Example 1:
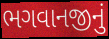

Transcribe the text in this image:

ભગવાનજીનું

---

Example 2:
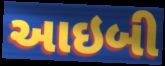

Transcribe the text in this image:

આઇબી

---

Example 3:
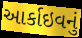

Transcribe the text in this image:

આર્કાઇવનું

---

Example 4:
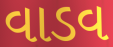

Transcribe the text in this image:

વાડવ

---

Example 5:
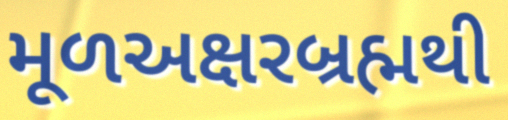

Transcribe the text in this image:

મૂળઅક્ષરબ્રહ્મથી